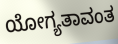
ಯೋಗ್ಯತಾವಂತ